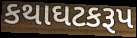
કથાઘટકરૂપ